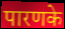
पारणके